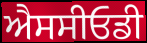
ਐਸਸੀਓਡੀ